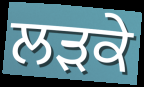
ਲੜਕੇ